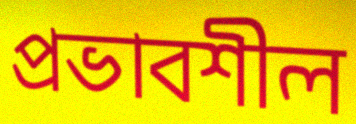
প্রভাবশীল